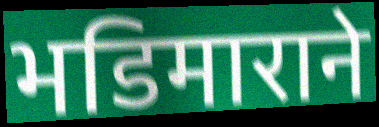
भडिमाराने